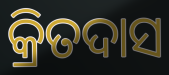
କ୍ରିତଦାସ